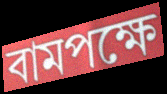
বামপক্ষে